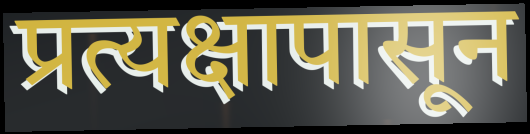
प्रत्यक्षापासून